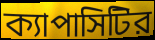
ক্যাপাসিটির